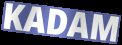
KADAM